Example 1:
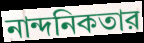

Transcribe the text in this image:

নান্দনিকতার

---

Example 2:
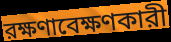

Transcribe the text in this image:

রক্ষণাবেক্ষণকারী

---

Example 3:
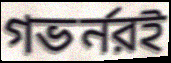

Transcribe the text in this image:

গভর্নরই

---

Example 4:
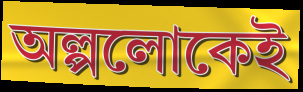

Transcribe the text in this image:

অল্পলোকেই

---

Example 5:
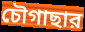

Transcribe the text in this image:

চৌগাছার